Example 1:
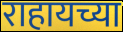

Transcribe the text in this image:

राहायच्या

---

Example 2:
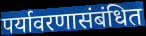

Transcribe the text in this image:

पर्यावरणासंबंधित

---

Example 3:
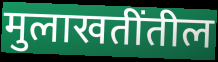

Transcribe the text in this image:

मुलाखतींतील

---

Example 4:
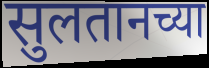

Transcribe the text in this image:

सुलतानच्या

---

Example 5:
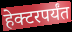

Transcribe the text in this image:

हेक्टरपर्यंत